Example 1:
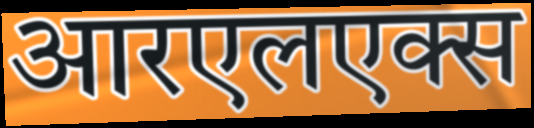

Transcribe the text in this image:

आरएलएक्स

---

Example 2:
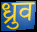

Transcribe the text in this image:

ध्रुव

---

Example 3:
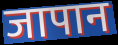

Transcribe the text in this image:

जापान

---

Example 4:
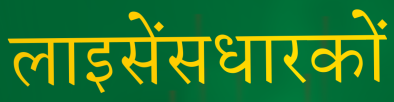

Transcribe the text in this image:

लाइसेंसधारकों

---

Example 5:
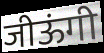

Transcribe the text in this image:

जीऊंगी